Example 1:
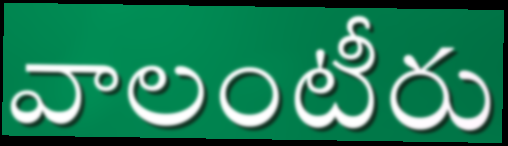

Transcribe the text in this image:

వాలంటీరు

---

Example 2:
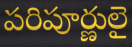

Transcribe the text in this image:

పరిపూర్ణులై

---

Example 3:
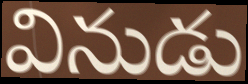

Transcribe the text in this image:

వినుడు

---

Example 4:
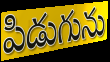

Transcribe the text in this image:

పిడుగును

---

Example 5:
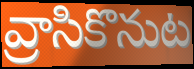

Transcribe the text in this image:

వ్రాసికొనుట